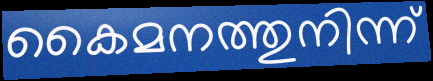
കൈമനത്തുനിന്ന്